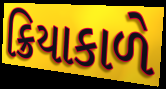
ક્રિયાકાળે